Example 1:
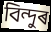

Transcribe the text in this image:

বিন্দুৰ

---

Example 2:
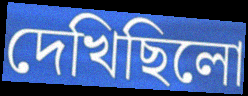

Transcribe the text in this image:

দেখিছিলো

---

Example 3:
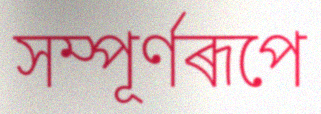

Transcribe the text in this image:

সম্পূৰ্ণৰূপে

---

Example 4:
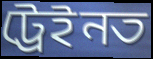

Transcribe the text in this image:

ট্ৰেইনত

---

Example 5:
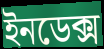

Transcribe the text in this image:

ইনডেক্স